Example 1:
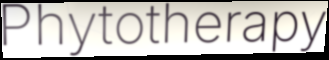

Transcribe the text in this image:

Phytotherapy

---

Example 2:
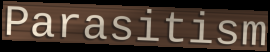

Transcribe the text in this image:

Parasitism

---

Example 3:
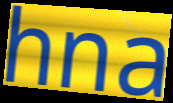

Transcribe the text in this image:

hna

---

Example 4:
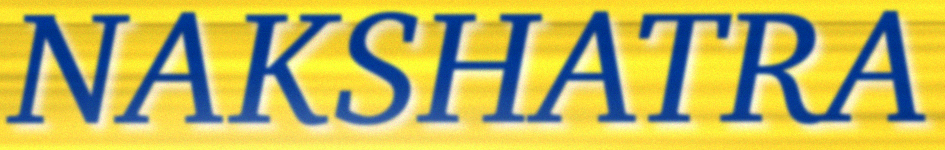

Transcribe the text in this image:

NAKSHATRA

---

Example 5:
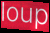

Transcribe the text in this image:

loup